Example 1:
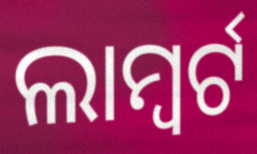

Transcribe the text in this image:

ଲାମ୍ବର୍ଟ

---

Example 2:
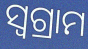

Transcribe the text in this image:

ସ୍ୱଗ୍ରାମ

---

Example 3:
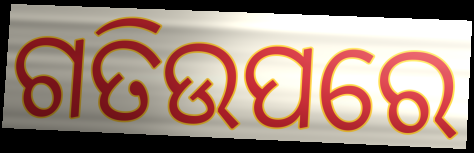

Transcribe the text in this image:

ଗତିଉପରେ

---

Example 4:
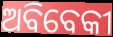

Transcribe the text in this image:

ଅବିବେକୀ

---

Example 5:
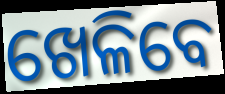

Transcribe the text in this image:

ଖେଳିବେ